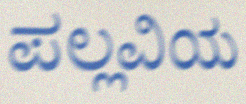
ಪಲ್ಲವಿಯ